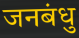
जनबंधु